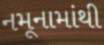
નમૂનામાંથી